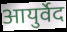
आयुर्वेद